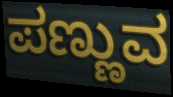
ಪಣ್ಣುವ